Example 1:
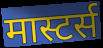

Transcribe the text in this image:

मास्टर्स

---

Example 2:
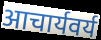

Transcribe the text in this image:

आचार्यवर्य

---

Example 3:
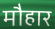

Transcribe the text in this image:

मौहार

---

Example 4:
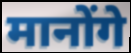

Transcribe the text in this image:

मानोंगे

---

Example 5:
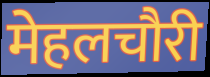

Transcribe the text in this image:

मेहलचौरी